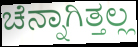
ಚೆನ್ನಾಗಿತ್ತಲ್ಲ